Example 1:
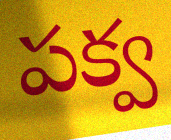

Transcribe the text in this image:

పక్వ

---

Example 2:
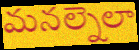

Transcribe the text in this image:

మనల్నెలా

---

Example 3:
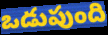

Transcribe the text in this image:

ఒడుపుంది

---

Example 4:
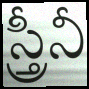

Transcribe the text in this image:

స్త్రీనీ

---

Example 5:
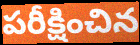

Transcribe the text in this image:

పరీక్షించిన